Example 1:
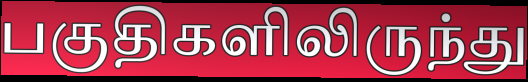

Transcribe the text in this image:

பகுதிகளிலிருந்து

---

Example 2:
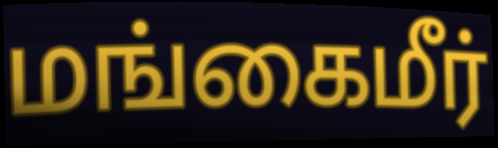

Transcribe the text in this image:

மங்கைமீர்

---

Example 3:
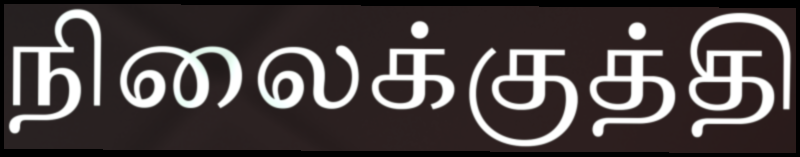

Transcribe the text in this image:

நிலைக்குத்தி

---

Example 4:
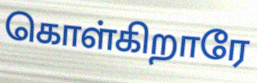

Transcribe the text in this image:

கொள்கிறாரே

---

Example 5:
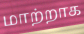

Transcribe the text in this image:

மாற்றாக